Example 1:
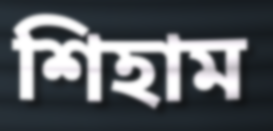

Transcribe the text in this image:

শিহাম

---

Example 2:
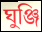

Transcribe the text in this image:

ঘুঞ্জি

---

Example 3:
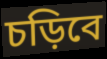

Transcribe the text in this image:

চড়িবে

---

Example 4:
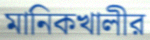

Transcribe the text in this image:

মানিকখালীর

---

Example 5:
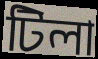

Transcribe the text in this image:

টিলা